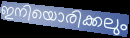
ഇനിയൊരിക്കലും